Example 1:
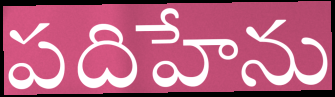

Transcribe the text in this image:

పదిహేను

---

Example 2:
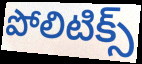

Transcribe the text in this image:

పోలిటిక్స్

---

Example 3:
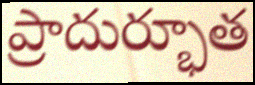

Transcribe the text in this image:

ప్రాదుర్భూత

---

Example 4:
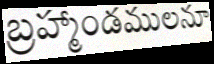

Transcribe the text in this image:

బ్రహ్మాండములనూ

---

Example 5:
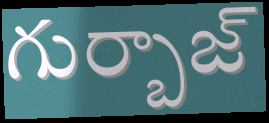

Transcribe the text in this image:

గుర్బాజ్